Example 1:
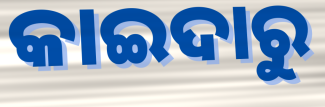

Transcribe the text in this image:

କାଇଦାରୁ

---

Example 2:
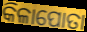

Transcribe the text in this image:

କିଳାପୋତା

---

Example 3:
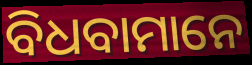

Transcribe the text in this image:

ବିଧବାମାନେ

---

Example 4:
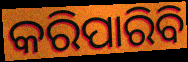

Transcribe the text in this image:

କରିପାରିବି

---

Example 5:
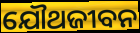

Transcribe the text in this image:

ଯୌଥଜୀବନ